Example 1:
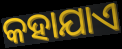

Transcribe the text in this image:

କହାଯାଏ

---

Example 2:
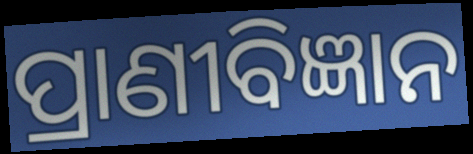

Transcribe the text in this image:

ପ୍ରାଣୀବିଜ୍ଞାନ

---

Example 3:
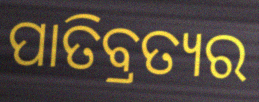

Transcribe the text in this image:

ପାତିବ୍ରତ୍ୟର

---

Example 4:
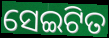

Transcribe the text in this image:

ସେଇଟିତ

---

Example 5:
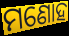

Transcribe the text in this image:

ମଣୋହ